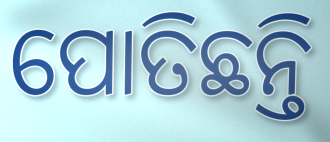
ପୋତିଛନ୍ତି